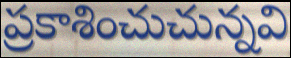
ప్రకాశించుచున్నవి